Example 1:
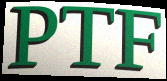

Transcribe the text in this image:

PTF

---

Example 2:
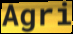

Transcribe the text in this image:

Agri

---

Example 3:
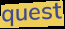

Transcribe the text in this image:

quest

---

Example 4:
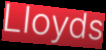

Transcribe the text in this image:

Lloyds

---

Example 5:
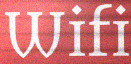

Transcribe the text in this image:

Wifi